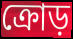
ক্রোড়